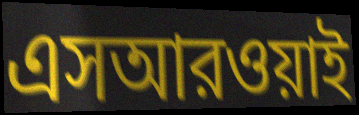
এসআরওয়াই